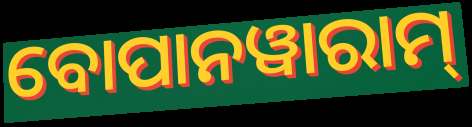
ବୋପାନୱାରାମ୍